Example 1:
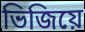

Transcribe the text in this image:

ভিজিয়ে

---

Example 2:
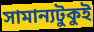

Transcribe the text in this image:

সামান্যটুকুই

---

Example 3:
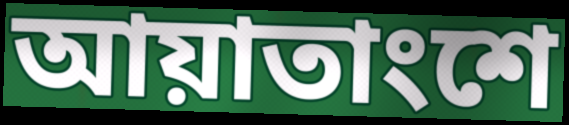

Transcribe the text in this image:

আয়াতাংশে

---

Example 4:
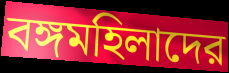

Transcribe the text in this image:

বঙ্গমহিলাদের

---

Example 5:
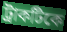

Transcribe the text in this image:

ট্রাকটিকে